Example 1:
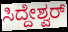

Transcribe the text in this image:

ಸಿದ್ದೇಶ್ವರ್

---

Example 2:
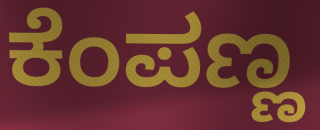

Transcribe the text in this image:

ಕೆಂಪಣ್ಣ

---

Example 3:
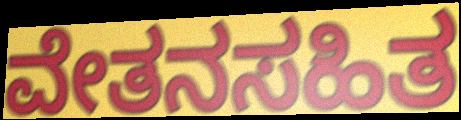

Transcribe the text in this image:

ವೇತನಸಹಿತ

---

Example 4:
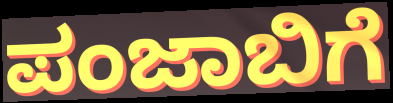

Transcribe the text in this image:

ಪಂಜಾಬಿಗೆ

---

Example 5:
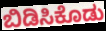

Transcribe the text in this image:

ಬಿಡಿಸಿಕೊಡು